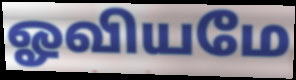
ஓவியமே